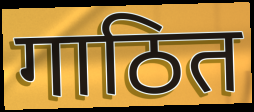
गाठित